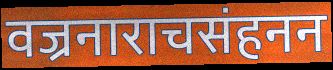
वज्रनाराचसंहनन